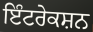
ਇੰਟਰੇਕਸ਼ਨ